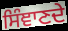
ਸਿੰਞਾਣਦੇ